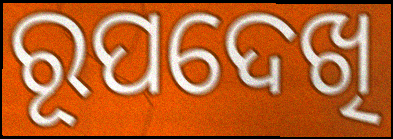
ରୂପଦେଖି